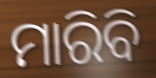
ମାରିବି